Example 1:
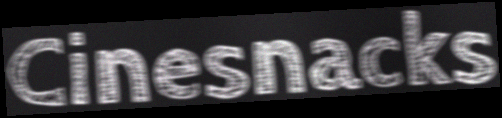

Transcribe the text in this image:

Cinesnacks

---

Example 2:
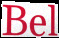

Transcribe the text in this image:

Bel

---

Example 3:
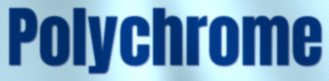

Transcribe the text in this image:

Polychrome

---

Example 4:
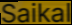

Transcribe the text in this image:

Saikal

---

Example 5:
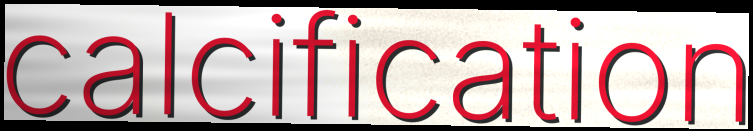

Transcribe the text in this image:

calcification